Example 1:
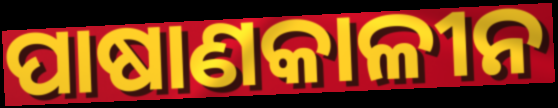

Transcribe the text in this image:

ପାଷାଣକାଳୀନ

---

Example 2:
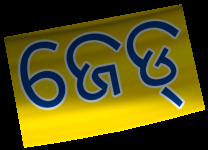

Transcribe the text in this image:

ଜେଡ୍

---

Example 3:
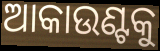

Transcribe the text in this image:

ଆକାଉଣ୍ଟକୁ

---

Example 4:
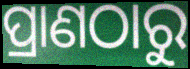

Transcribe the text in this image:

ପ୍ରାଣଠାରୁ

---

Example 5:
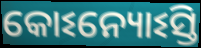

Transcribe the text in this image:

କୋଽନ୍ୟୋଽସ୍ତି